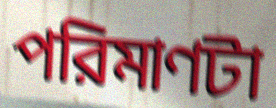
পরিমাণটা